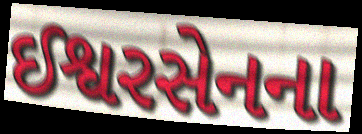
ઈશ્વરસેનના